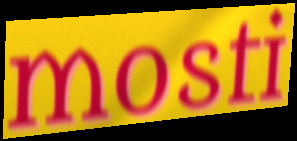
mosti